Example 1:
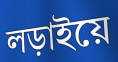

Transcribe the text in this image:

লড়াইয়ে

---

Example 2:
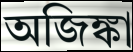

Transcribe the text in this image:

অজিঙ্কা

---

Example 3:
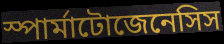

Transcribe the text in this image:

স্পার্মাটোজেনেসিস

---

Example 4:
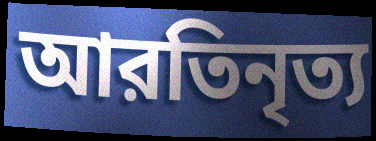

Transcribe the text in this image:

আরতিনৃত্য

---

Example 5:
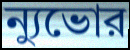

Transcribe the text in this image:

ন্যুভোর